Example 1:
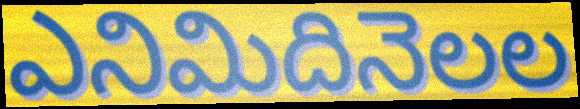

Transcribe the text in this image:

ఎనిమిదినెలల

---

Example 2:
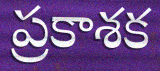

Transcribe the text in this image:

ప్రకాశక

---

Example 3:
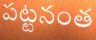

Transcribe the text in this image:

పట్టనంత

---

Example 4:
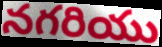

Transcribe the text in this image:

నగరియు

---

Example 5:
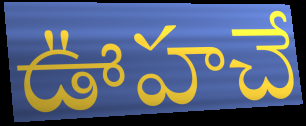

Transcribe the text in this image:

ఊహచే